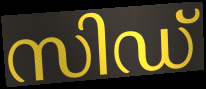
സിഡ്